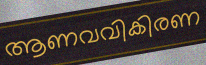
ആണവവികിരണ